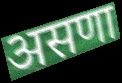
असणा